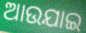
ଆଉଯାଇ